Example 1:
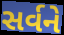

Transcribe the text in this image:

સર્વને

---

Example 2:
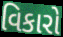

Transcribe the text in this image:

વિકારો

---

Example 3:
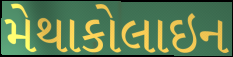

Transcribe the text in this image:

મેથાકોલાઇન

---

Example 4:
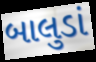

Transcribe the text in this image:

બાલુડાં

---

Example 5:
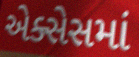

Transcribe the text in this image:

એક્સેસમાં